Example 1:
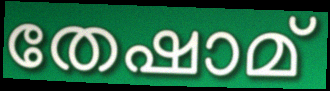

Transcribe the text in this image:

തേഷാമ്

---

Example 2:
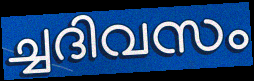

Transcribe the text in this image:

ച്ചദിവസം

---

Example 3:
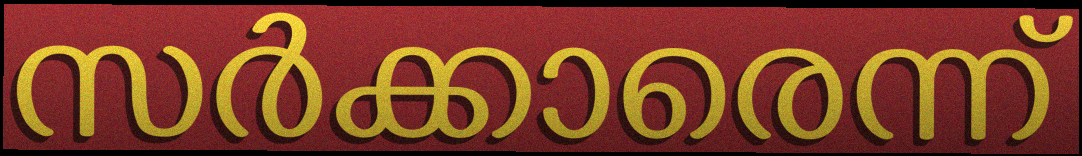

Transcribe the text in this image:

സർക്കാരെന്ന്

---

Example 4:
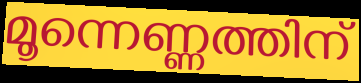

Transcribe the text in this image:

മൂന്നെണ്ണത്തിന്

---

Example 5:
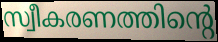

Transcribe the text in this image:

സ്വീകരണത്തിന്റെ